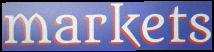
markets